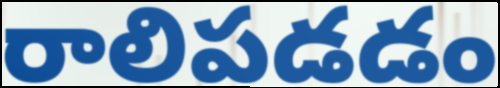
రాలిపడడం